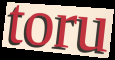
toru